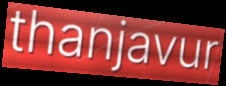
thanjavur